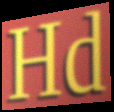
Hd